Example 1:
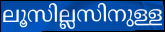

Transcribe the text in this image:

ലൂസില്ലസിനുള്ള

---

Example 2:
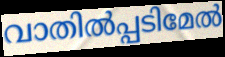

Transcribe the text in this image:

വാതിൽപ്പടിമേൽ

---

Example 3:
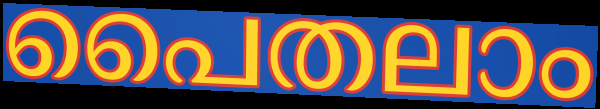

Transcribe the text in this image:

പൈതലാം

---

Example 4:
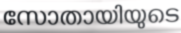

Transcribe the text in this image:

സോതായിയുടെ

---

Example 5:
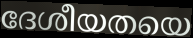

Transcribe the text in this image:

ദേശീയതയെ